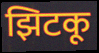
झिटकू